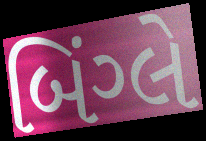
બિંગ્લે